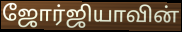
ஜோர்ஜியாவின்